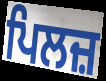
ਪਿਲਜ਼